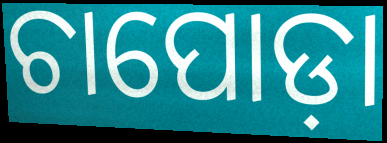
ଚାପୋଡ଼ା